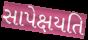
સાપેક્ષયતિ